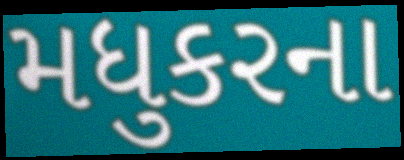
મધુકરના